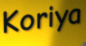
Koriya